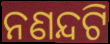
ନଣନ୍ଦଟି